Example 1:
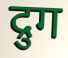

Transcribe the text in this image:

द्रुग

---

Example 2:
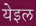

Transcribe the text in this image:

येइल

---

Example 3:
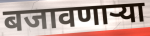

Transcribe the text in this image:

बजावणाऱ्या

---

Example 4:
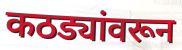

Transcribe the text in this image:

कठड्यांवरून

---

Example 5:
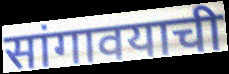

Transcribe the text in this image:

सांगावयाची